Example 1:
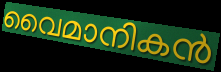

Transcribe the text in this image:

വൈമാനികൻ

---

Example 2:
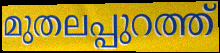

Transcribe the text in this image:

മുതലപ്പുറത്ത്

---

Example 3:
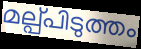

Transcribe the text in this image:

മല്പ്പിടുത്തം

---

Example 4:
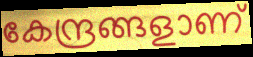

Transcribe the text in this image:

കേന്ദ്രങ്ങളാണ്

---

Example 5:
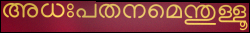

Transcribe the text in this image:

അധഃപതനമെന്തുള്ളൂ